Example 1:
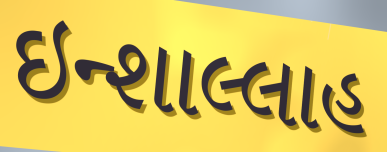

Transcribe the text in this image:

ઇન્શાલ્લાહ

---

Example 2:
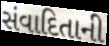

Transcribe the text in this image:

સંવાદિતાની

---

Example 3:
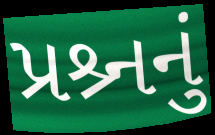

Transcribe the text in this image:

પ્રશ્ર્નનું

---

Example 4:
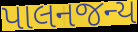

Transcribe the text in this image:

પાલનજન્ય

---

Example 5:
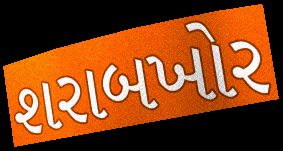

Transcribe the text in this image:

શરાબખોર